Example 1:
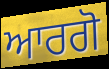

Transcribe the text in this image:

ਆਰਗੋ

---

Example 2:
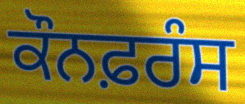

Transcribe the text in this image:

ਕੌਨਫ਼ਰੰਸ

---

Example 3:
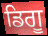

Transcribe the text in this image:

ਡਿਗੂ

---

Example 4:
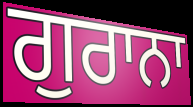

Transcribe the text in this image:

ਗੁਰਾਨਾ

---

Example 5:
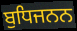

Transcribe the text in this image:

ਬੁਧਿਜਨਨ